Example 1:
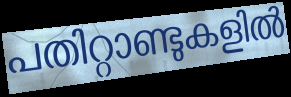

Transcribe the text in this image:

പതിറ്റാണ്ടുകളിൽ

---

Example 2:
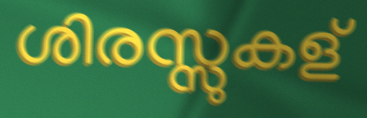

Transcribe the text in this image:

ശിരസ്സുകള്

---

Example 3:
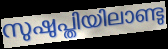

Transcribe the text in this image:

സുഷുപ്തിയിലാണ്ടു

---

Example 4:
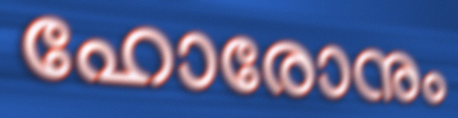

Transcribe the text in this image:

ഹോരോനും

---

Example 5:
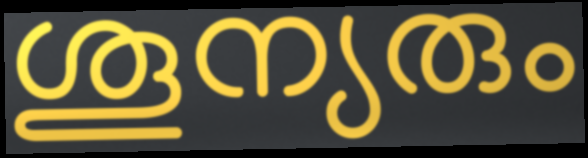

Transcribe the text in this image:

ശൂന്യരും